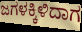
ಜಗಳಕ್ಕಿಳಿದಾಗ